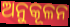
ଅନୁକୂଳନ